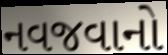
નવજવાનો